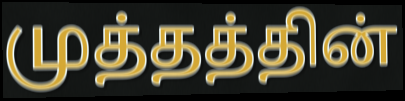
முத்தத்தின்